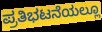
ಪ್ರತಿಭಟನೆಯಲ್ಲೂ